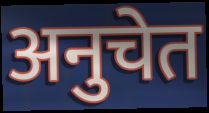
अनुचेत